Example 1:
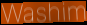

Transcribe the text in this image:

Washim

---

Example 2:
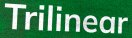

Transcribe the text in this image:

Trilinear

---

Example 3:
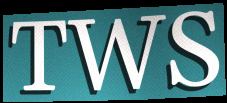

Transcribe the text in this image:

TWS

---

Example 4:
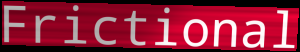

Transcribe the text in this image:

Frictional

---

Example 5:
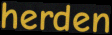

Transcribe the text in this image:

herden